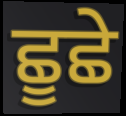
ਛੂਛੇ